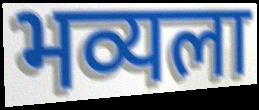
भव्यला